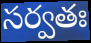
సర్వతః